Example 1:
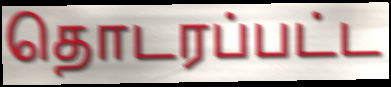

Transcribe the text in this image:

தொடரப்பட்ட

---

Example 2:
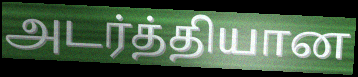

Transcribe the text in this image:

அடர்த்தியான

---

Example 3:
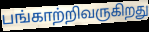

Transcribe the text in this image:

பங்காற்றிவருகிறது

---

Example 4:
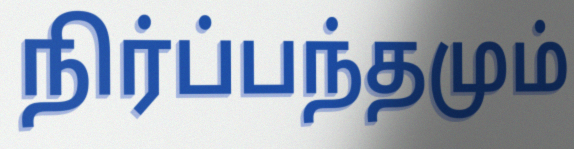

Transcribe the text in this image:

நிர்ப்பந்தமும்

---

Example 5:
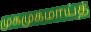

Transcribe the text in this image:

முகமுகமாய்த்